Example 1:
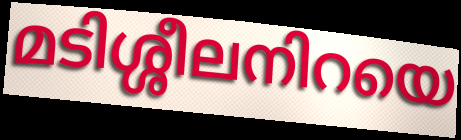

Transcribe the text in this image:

മടിശ്ശീലനിറയെ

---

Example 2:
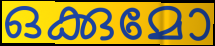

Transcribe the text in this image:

ഒക്കുമോ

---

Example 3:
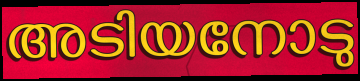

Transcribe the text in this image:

അടിയനോടു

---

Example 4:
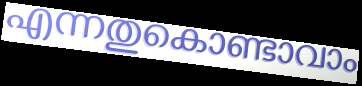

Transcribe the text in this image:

എന്നതുകൊണ്ടാവാം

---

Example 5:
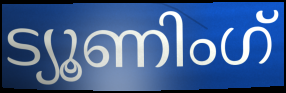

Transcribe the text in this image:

ട്യൂണിംഗ്